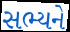
સભ્યને